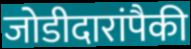
जोडीदारांपैकी